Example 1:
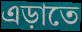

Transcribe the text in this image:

এড়াতে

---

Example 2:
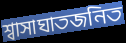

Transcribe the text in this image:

শ্বাসাঘাতজনিত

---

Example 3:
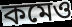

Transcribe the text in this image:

কমেও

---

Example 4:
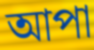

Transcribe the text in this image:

আপা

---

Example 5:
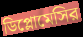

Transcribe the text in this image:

ডিপ্লোমেসির